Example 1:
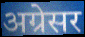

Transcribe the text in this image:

अग्रेसर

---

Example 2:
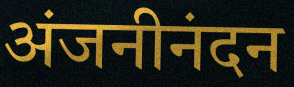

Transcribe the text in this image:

अंजनीनंदन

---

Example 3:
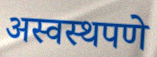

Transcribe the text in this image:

अस्वस्थपणे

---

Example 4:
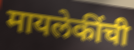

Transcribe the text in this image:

मायलेकींची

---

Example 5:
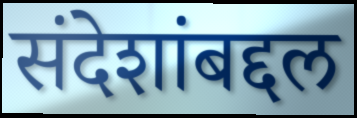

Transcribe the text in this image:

संदेशांबद्दल